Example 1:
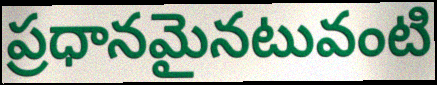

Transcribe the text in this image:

ప్రధానమైనటువంటి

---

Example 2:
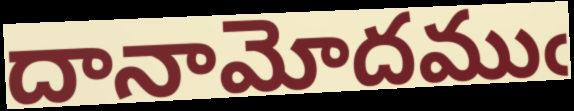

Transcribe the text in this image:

దానామోదముఁ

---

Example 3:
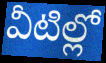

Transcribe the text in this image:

వీటిల్లో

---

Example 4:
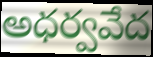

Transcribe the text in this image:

అధర్వవేద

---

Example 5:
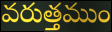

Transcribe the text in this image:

వరుత్తముం